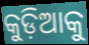
କୁଡ଼ିଆକୁ